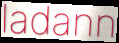
ladann